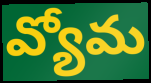
వ్యోమ